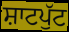
ਸ਼ਾਟਪੁੱਟ